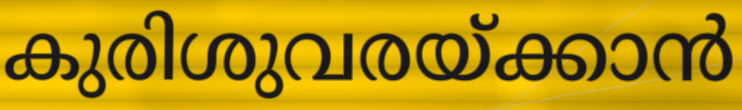
കുരിശുവരയ്ക്കാൻ